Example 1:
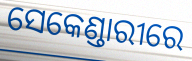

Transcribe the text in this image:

ସେକେଣ୍ଡାରୀରେ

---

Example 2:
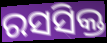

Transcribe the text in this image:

ରସସିକ୍ତ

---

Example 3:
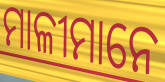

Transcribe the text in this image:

ମାଳୀମାନେ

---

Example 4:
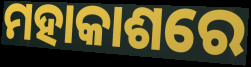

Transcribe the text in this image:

ମହାକାଶରେ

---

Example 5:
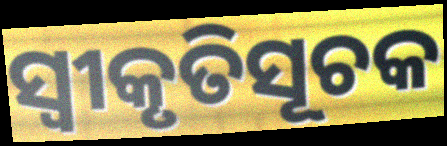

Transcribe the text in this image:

ସ୍ଵୀକୃତିସୂଚକ